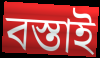
বস্তাই